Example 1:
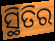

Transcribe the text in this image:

ସ୍ଥିତିର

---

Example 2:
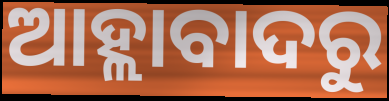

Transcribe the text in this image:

ଆହ୍ଲାବାଦରୁ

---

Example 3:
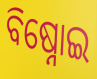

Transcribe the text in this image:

ବିଷ୍ନୋଇ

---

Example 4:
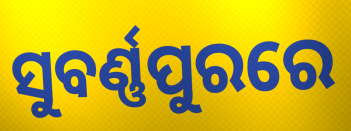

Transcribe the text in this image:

ସୁବର୍ଣ୍ଣପୁରରେ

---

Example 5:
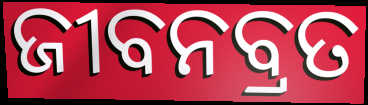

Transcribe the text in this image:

ଜୀବନବ୍ରତ